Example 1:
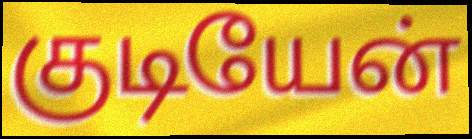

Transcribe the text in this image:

குடியேன்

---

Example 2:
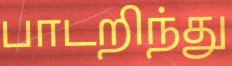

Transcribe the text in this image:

பாடறிந்து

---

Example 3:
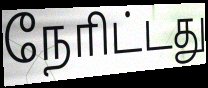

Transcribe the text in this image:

நேரிட்டது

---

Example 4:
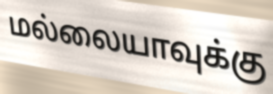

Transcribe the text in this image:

மல்லையாவுக்கு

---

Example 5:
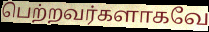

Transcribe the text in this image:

பெற்றவர்களாகவே